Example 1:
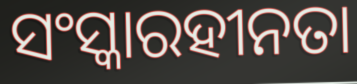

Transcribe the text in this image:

ସଂସ୍କାରହୀନତା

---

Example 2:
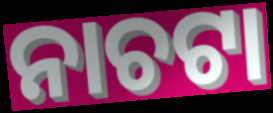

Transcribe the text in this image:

ନାଚଟା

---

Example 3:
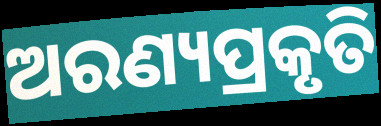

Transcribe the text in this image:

ଅରଣ୍ୟପ୍ରକୃତି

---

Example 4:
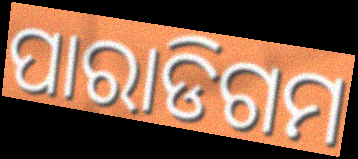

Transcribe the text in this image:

ପାରାଡିଗମ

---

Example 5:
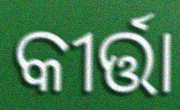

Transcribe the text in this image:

କୀର୍ତ୍ତା